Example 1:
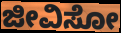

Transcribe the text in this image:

ಜೀವಿಸೋ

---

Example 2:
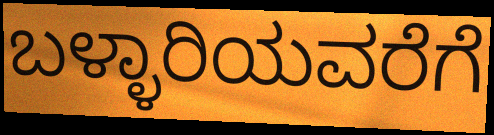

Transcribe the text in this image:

ಬಳ್ಳಾರಿಯವರೆಗೆ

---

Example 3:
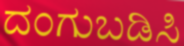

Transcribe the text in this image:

ದಂಗುಬಡಿಸಿ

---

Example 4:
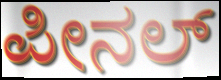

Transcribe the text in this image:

ಪೀನಲ್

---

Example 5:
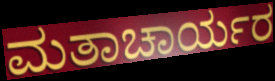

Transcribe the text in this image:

ಮತಾಚಾರ್ಯರ